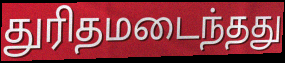
துரிதமடைந்தது